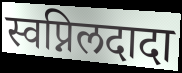
स्वप्निलदादा